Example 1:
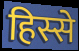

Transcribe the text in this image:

हिस्‍से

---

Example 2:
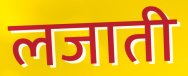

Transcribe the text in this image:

लजाती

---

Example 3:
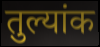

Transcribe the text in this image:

तुल्यांक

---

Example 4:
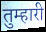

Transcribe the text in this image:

तुम्हारी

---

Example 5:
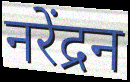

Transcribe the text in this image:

नरेंद्रन